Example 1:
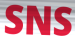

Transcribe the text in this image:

SNS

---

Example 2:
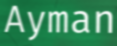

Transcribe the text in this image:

Ayman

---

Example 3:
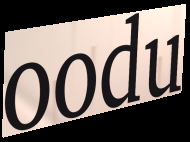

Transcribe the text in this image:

oodu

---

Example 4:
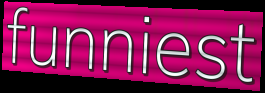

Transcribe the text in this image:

funniest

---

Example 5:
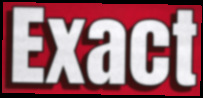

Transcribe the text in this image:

Exact